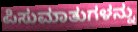
ಪಿಸುಮಾತುಗಳನ್ನು